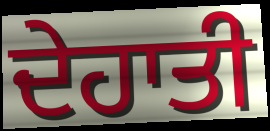
ਦੇਹਾਤੀ